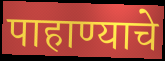
पाहाण्याचे